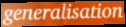
generalisation